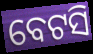
ବେଟସି